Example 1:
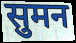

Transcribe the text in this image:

सुमन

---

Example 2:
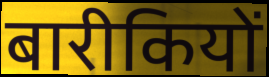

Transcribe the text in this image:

बारीकियों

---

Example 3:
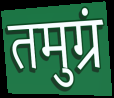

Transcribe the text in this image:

तमुग्रं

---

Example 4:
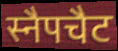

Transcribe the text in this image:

स्नैपचैट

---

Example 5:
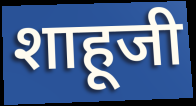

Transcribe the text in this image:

शाहूजी